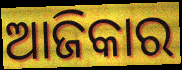
ଆଜିକାର